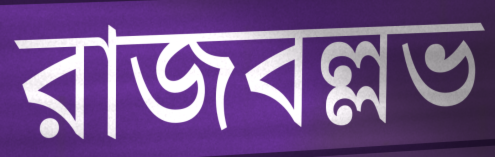
রাজবল্লভ